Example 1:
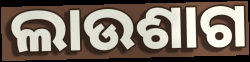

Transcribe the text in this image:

ଲାଉଶାଗ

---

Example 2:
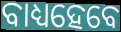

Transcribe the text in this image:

ବାଧ୍ୟହେବେ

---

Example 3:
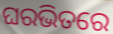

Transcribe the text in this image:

ଘରଭିତରେ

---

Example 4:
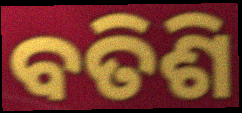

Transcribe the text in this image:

ବତିଶି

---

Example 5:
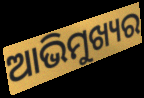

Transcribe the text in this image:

ଆଭିମୁଖ୍ୟର